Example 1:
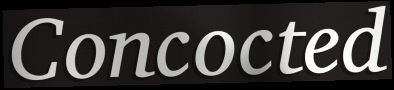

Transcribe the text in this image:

Concocted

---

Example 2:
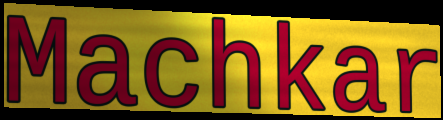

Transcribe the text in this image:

Machkar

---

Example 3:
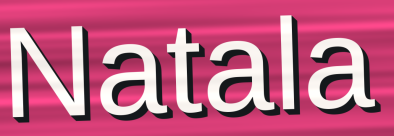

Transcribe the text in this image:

Natala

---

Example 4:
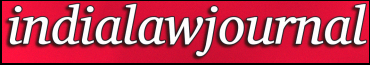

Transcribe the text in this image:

indialawjournal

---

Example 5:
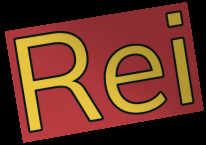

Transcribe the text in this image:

Rei